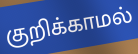
குறிக்காமல்